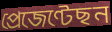
প্ৰেজেণ্টেছন